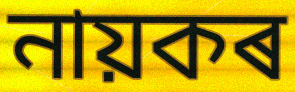
নায়কৰ